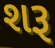
શરૂ